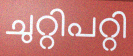
ചുറ്റിപറ്റി